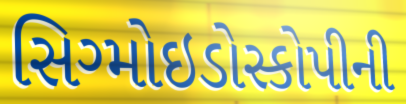
સિગ્મોઇડોસ્કોપીની